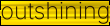
outshining